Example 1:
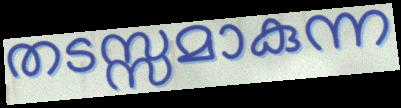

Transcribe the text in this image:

തടസ്സമാകുന്ന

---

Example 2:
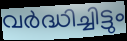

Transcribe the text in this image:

വർദ്ധിച്ചിട്ടും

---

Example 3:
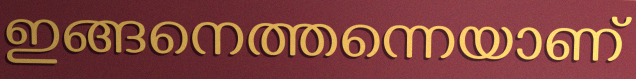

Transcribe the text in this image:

ഇങ്ങനെത്തന്നെയാണ്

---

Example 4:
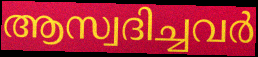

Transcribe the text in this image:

ആസ്വദിച്ചവർ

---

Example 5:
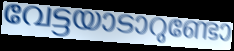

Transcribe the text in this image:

വേട്ടയാടാറുണ്ടോ